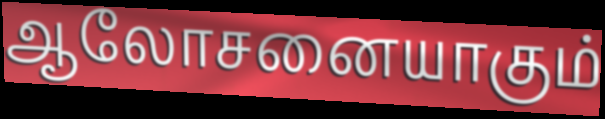
ஆலோசனையாகும்